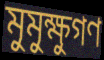
মুমুক্ষুগণ